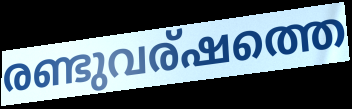
രണ്ടുവര്ഷത്തെ